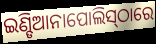
ଇଣ୍ଡିଆନାପୋଲିସ୍‍ଠାରେ